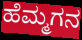
ಹೆಮ್ಮಗನ